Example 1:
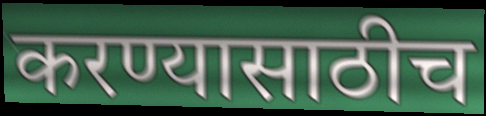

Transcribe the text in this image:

करण्यासाठीच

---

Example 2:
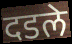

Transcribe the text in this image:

दडले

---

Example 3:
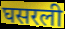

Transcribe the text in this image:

घसरली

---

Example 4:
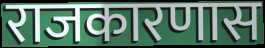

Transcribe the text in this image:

राजकारणास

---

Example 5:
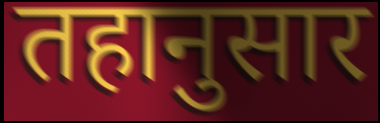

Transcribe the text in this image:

तहानुसार